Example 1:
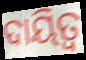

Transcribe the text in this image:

ଦାୟିତ୍ବ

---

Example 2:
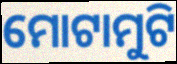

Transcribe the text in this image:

ମୋଟାମୁଟି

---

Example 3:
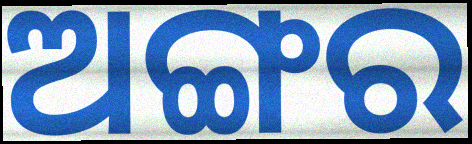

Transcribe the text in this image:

ଅଙ୍ଗର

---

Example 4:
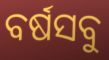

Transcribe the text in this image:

ବର୍ଷସବୁ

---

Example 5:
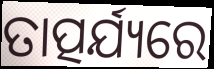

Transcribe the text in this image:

ତାତ୍ପର୍ଯ୍ୟରେ